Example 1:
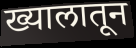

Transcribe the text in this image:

ख्यालातून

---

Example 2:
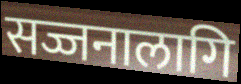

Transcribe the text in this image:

सज्जनालागि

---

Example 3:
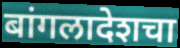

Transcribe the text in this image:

बांगलादेशचा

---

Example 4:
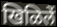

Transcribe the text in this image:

खिळिलें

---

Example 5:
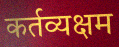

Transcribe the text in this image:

कर्तव्यक्षम